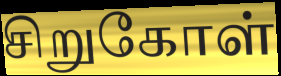
சிறுகோள்